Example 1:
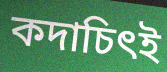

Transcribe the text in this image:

কদাচিৎই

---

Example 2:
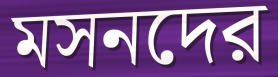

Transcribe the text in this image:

মসনদের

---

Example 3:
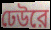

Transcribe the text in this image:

ঢেউরে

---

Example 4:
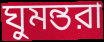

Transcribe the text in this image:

ঘুমন্তরা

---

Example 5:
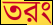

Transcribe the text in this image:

তরং